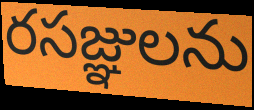
రసజ్ఞులను